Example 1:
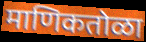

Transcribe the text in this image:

माणिकतोळा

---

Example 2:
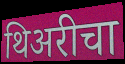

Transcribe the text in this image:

थिअरीचा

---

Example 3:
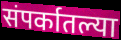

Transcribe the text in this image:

संपर्कातल्या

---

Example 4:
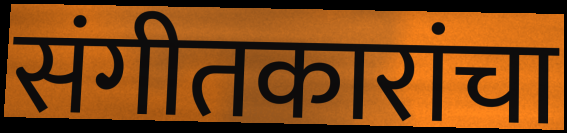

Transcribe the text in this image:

संगीतकारांचा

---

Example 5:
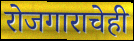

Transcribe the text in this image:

रोजगाराचेही